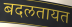
बदलतायत